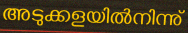
അടുക്കളയിൽനിന്നു്